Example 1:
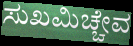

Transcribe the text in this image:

ಸುಖಮಿಚ್ಚೇವ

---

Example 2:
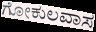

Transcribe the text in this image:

ಗೋಕುಲವಾಸ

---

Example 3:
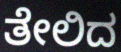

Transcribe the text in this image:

ತೇಲಿದ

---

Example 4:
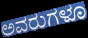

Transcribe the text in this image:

ಅವರುಗಳೂ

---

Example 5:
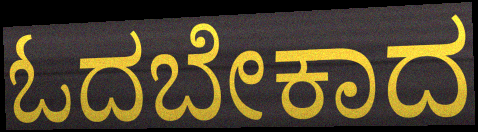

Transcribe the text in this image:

ಓದಬೇಕಾದ